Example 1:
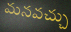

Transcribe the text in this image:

మనవచ్చు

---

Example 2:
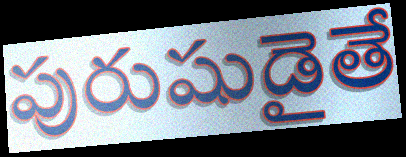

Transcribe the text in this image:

పురుషుడైతే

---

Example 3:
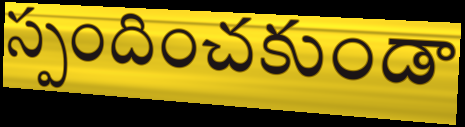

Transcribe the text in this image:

స్పందించకుండా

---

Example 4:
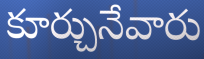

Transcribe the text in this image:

కూర్చునేవారు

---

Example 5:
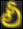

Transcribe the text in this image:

లీ